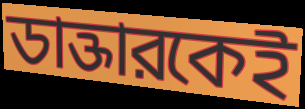
ডাক্তারকেই